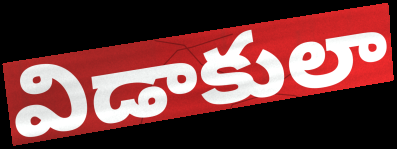
విడాకులా